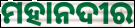
ମହାନଦୀର